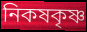
নিকষকৃষ্ণ